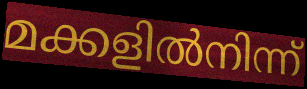
മക്കളിൽനിന്ന്